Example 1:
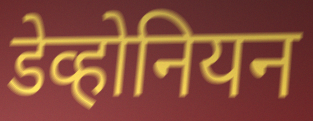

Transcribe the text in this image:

डेव्होनियन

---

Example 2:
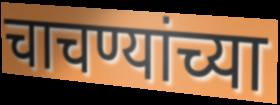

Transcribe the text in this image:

चाचण्यांच्या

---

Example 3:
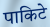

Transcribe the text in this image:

पाकिटे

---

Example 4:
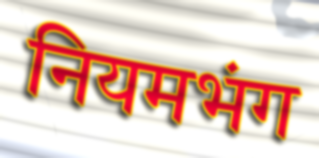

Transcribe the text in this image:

नियमभंग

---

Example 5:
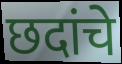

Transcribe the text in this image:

छदांचे